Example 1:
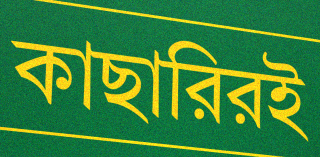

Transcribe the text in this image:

কাছারিরই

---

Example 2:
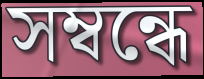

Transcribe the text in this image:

সম্বন্ধে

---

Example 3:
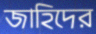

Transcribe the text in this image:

জাহিদের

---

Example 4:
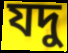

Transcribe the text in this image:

যদু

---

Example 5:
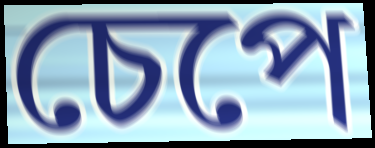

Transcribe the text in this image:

চেপে